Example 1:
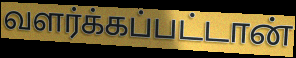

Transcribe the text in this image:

வளர்க்கப்பட்டான்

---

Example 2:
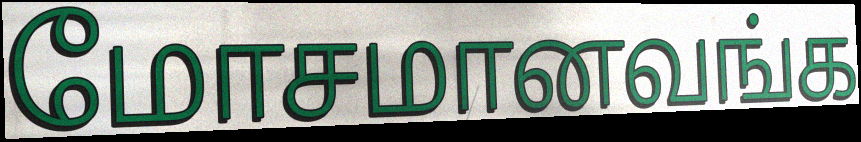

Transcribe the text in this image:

மோசமானவங்க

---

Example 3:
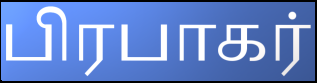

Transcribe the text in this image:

பிரபாகர்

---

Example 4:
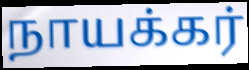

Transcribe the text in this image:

நாயக்கர்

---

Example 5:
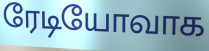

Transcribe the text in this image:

ரேடியோவாக